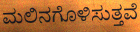
ಮಲಿನಗೊಳಿಸುತ್ತವೆ